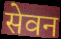
सेवन